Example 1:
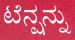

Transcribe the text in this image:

ಟೆನ್ಷನ್ನು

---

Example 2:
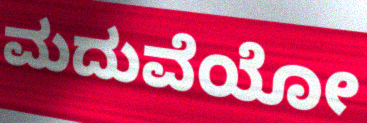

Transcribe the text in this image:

ಮದುವೆಯೋ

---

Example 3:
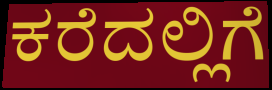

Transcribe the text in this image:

ಕರೆದಲ್ಲಿಗೆ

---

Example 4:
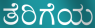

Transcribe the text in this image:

ತೆರಿಗೆಯ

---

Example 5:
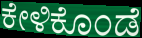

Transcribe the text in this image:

ಕೇಳಿಕೊಂಡೆ